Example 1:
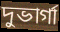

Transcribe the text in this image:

দুভার্গা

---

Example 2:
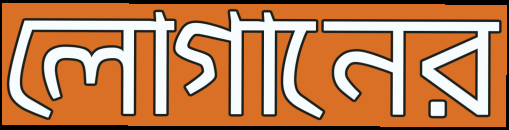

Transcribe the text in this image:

লোগানের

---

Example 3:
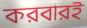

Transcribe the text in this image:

করবারই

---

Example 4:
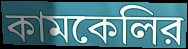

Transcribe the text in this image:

কামকেলির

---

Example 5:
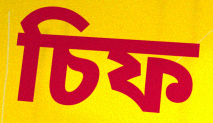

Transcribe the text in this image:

চিফ